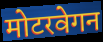
मोटरवेगन